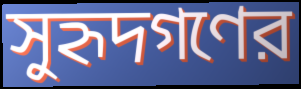
সুহৃদগণের